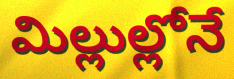
మిల్లుల్లోనే